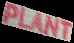
PLANT